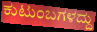
ಕುಟುಂಬಗಳದ್ದು